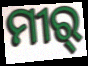
ମୀର୍